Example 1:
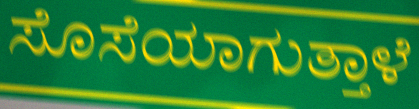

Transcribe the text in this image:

ಸೊಸೆಯಾಗುತ್ತಾಳೆ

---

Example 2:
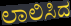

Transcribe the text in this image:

ಲಾಲಿಸಿದ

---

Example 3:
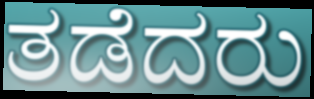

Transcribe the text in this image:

ತಡೆದರು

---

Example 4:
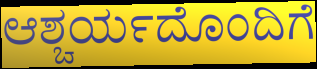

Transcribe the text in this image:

ಆಶ್ಚರ್ಯದೊಂದಿಗೆ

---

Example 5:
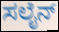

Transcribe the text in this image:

ಸಲೈನ್